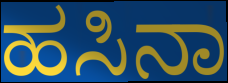
ಹಸಿನಾ